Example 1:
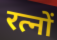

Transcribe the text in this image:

रत्नों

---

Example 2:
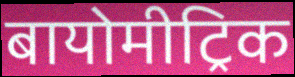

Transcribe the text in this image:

बायोमीट्रिक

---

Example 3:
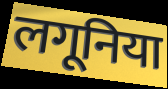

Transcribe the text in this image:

लगूनिया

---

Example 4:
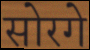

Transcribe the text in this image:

सोरगे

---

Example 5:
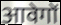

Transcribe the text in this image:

आवेगों